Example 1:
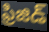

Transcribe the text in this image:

ఫ్రిజిడ్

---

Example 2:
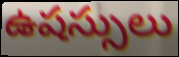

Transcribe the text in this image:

ఉషస్సులు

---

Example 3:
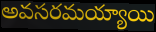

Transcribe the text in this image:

అవసరమయ్యాయి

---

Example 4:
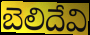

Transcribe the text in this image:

బెలిదేవి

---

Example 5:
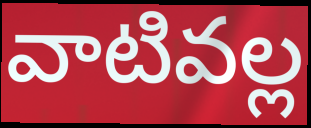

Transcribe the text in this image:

వాటివల్ల